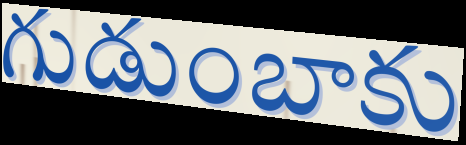
గుడుంబాకు